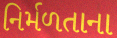
નિર્મળતાના